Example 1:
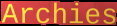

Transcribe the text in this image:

Archies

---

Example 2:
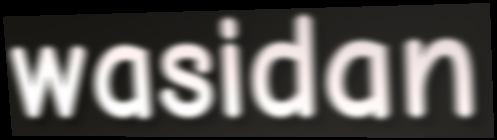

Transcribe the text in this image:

wasidan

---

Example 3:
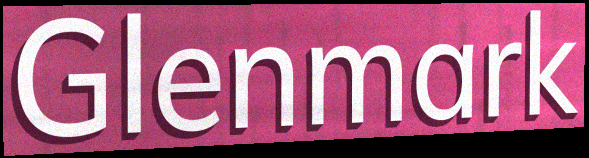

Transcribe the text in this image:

Glenmark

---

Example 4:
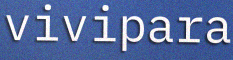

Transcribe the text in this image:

vivipara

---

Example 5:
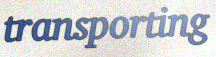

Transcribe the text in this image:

transporting